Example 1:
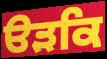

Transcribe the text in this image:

ੳੜਕਿ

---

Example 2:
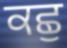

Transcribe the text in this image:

ਕਛੁ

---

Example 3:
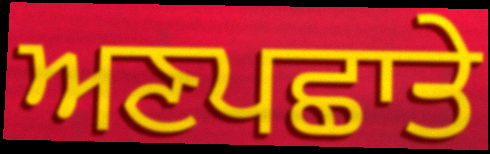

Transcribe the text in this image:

ਅਣਪਛਾਤੇ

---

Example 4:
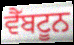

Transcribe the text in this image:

ਵੈੱਬਟੂਨ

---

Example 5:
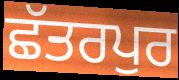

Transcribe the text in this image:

ਛੱਤਰਪੁਰ